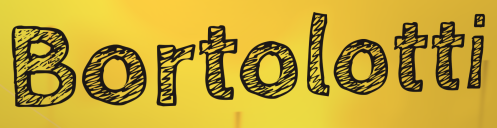
Bortolotti